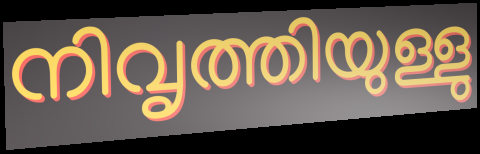
നിവൃത്തിയുള്ളു